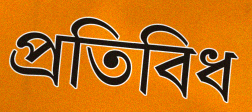
প্ৰতিবিধ